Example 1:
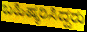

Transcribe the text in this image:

ಬಹಿಷ್ಕರಿಸಿದ್ದರು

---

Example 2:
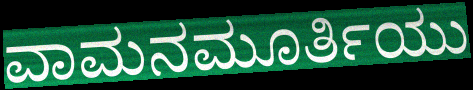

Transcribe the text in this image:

ವಾಮನಮೂರ್ತಿಯು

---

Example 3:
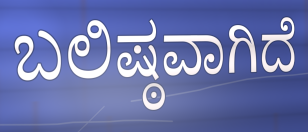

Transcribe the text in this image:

ಬಲಿಷ್ಠವಾಗಿದೆ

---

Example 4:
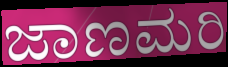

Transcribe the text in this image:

ಜಾಣಮರಿ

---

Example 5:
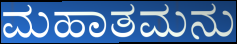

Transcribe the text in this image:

ಮಹಾತಮನು